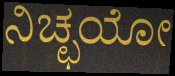
ನಿಚ್ಛಯೋ